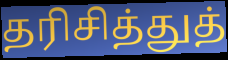
தரிசித்துத்